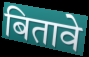
बितावे